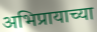
अभिप्रायाच्या